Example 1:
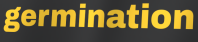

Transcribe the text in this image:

germination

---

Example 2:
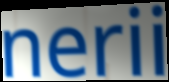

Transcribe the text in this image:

nerii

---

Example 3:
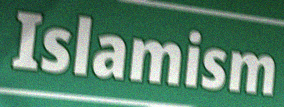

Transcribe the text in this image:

Islamism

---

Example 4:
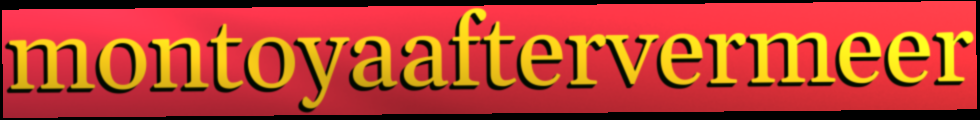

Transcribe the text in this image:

montoyaaftervermeer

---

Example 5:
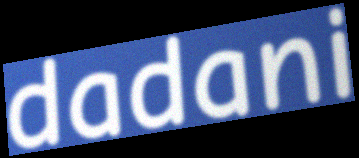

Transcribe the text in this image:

dadani